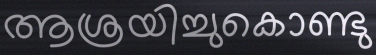
ആശ്രയിച്ചുകൊണ്ടു